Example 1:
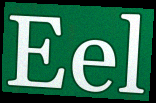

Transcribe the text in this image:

Eel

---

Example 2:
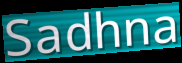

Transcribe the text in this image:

Sadhna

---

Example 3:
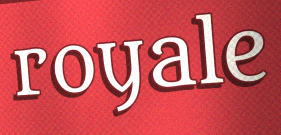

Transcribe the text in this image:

royale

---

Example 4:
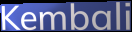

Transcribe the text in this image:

Kembali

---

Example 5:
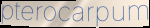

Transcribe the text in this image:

pterocarpum